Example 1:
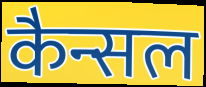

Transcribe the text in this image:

कैन्सल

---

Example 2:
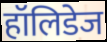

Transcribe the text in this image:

हॉलिडेज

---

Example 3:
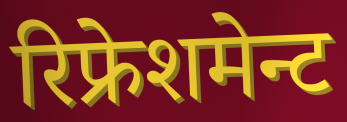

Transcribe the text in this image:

रिफ्रेशमेन्ट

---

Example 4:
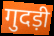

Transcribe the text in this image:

गुदड़ी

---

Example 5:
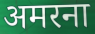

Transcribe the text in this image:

अमरना